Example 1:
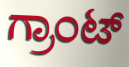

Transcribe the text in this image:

ಗ್ರಾಂಟ್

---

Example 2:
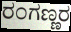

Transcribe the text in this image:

ರಂಗಣ್ಣರ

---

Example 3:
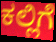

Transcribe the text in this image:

ಕಲ್ಲಿಗೆ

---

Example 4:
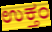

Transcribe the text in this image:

ಉಕ್ತಂ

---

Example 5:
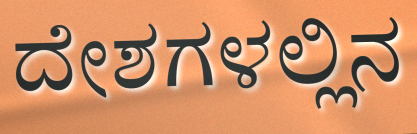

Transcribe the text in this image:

ದೇಶಗಳಲ್ಲಿನ